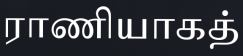
ராணியாகத்